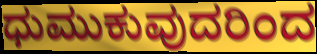
ಧುಮುಕುವುದರಿಂದ